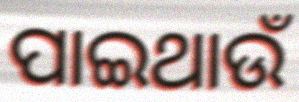
ପାଇଥାଉଁ